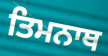
ਤਿਮਨਾਥ